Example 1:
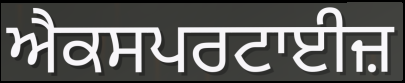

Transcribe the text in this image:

ਐਕਸਪਰਟਾਈਜ਼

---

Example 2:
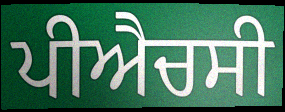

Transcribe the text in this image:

ਪੀਐਚਸੀ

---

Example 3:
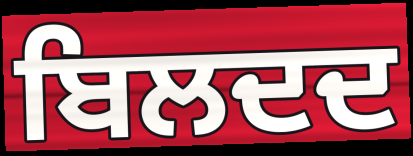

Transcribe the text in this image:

ਬਿਲਦਦ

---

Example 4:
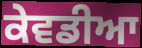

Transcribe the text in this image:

ਕੇਵਡੀਆ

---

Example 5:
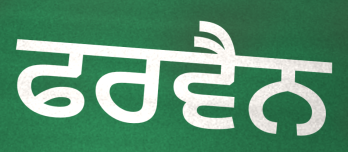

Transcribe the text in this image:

ਫਰਵੈਨ